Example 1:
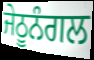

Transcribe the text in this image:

ਜੇਠੂਨੰਗਲ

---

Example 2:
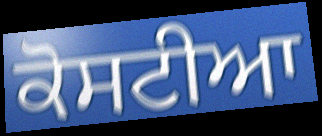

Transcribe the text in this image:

ਕੋਸਟੀਆ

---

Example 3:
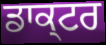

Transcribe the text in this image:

ਡਾਕ੍ਟਰ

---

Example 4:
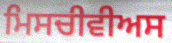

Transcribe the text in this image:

ਮਿਸਚੀਵੀਅਸ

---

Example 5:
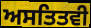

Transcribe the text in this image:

ਅਸਤਿਤਵੀ